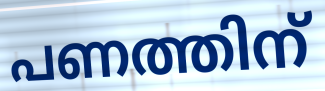
പണത്തിന്